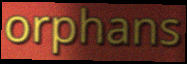
orphans